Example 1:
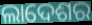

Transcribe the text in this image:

ଲାଦେଶର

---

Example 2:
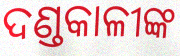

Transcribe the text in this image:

ଦଣ୍ଡକାଳୀଙ୍କ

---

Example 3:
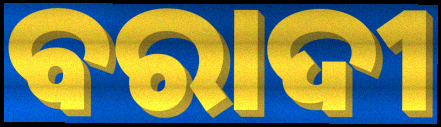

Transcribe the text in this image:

ବରାଦୀ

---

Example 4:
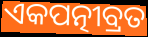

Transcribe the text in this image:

ଏକପତ୍ନୀବ୍ରତ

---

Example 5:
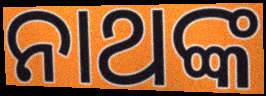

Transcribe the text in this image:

ନାଥଙ୍କ